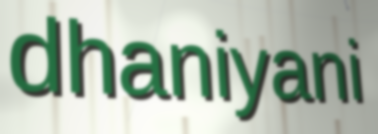
dhaniyani